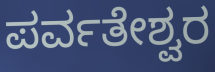
ಪರ್ವತೇಶ್ವರ